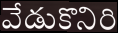
వేడుకొనిరి